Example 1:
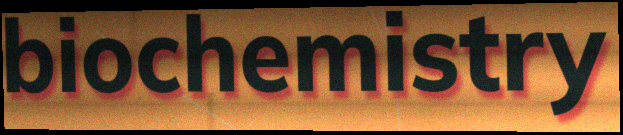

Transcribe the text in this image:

biochemistry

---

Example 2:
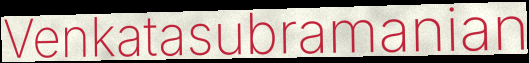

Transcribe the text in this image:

Venkatasubramanian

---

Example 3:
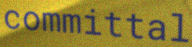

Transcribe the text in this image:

committal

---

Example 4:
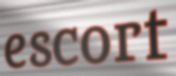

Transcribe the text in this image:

escort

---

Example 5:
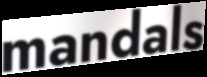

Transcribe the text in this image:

mandals